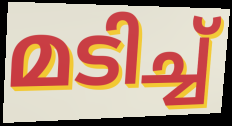
മടിച്ച്